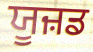
ਯੂਜ਼ਡ